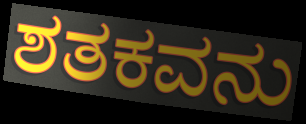
ಶತಕವನು